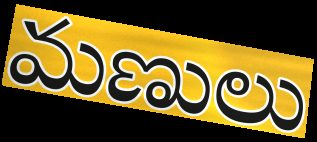
మణులు